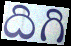
దిగి